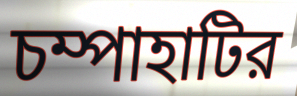
চম্পাহাটির